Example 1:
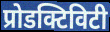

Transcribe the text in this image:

प्रोडक्टिविटी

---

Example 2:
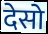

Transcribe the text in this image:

देसो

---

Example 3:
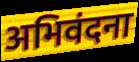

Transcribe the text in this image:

अभिवंदना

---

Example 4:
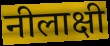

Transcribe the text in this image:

नीलाक्षी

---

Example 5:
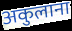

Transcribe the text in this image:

अकुलाना